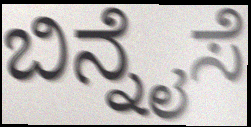
ಬಿನ್ನೈಸೆ